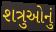
શત્રુઓનું